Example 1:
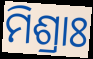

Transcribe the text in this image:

ମିଶ୍ରାଃ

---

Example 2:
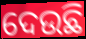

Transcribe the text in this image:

ଦେଉଛି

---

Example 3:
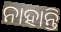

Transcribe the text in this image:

ନାହାନ୍ତି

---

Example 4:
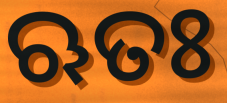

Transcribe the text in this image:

ଋତଃ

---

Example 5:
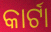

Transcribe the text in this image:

କାର୍ଟା